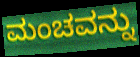
ಮಂಚವನ್ನು